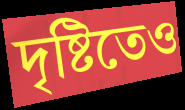
দৃষ্টিতেও